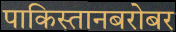
पाकिस्तानबरोबर